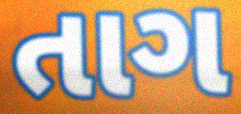
તાગ